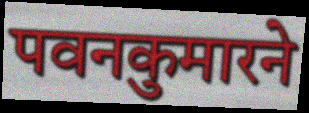
पवनकुमारने